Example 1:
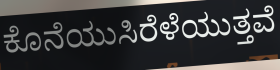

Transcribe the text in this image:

ಕೊನೆಯುಸಿರೆಳೆಯುತ್ತವೆ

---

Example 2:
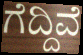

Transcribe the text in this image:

ಗೆದ್ದಿವೆ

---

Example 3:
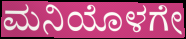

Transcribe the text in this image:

ಮನಿಯೊಳಗೇ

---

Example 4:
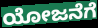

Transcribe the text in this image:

ಯೋಜನೆಗೆ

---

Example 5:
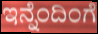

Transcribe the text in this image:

ಇನ್ನೆಂದಿಂಗೆ